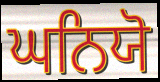
ਘਨਿਯੋ